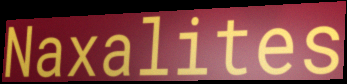
Naxalites